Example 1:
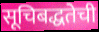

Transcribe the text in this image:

सूचिबद्धतेची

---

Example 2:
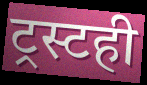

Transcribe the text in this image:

ट्रस्टही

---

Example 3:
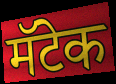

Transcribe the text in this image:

मॅटेक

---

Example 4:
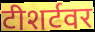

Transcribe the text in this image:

टीशर्टवर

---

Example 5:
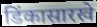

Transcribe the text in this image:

डिंकासारखे